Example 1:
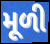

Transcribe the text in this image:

મૂળી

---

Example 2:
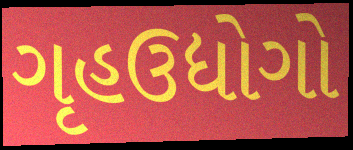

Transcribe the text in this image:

ગૃહઉદ્યોગો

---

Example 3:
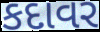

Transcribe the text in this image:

કદાવર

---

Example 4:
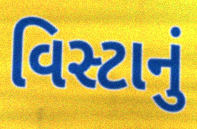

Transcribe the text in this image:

વિસ્ટાનું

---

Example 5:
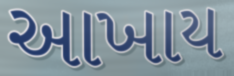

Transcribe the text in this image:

આખાય